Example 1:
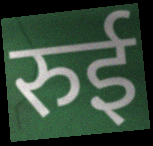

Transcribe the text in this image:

रुई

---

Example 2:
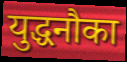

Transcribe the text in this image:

युद्धनौका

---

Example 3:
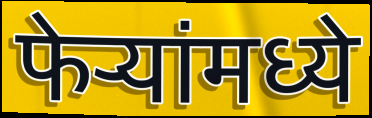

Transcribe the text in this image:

फेऱ्यांमध्ये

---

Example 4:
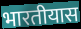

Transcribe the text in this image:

भारतीयास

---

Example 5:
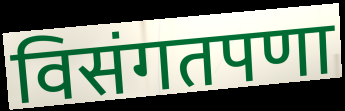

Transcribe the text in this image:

विसंगतपणा